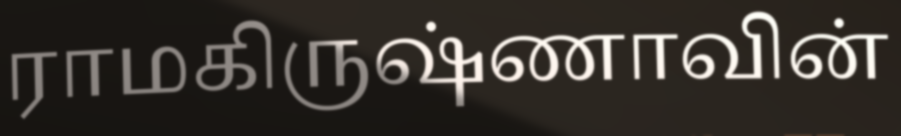
ராமகிருஷ்ணாவின்